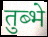
तुब्भे